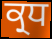
ਕ੍ਰਧ